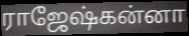
ராஜேஷ்கன்னா